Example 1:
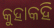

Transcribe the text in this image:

କୁହାକହି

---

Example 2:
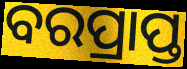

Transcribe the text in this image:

ବରପ୍ରାପ୍ତ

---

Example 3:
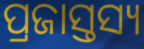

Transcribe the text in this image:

ପ୍ରଜାସ୍ତସ୍ୟ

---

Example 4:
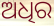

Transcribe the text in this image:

ଅଧିର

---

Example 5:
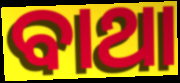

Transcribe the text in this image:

ବାଥା